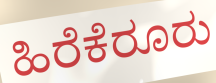
ಹಿರೆಕೆರೂರು